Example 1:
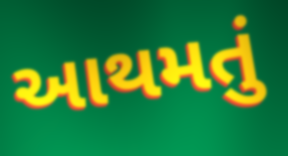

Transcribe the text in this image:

આથમતું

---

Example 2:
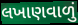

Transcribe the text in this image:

લખાણવાળું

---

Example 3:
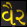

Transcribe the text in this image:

વૈર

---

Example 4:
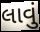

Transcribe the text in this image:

લાવું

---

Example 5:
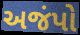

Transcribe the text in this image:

અજંપો